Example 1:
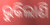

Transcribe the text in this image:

ଭୁକିଲାଣି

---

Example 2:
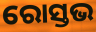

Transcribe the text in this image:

ରୋସ୍ତଭ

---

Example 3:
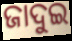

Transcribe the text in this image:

ଜାଦୁଇ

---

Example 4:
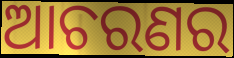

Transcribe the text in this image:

ଆଚରଣର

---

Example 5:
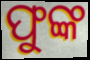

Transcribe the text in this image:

ଫୁଙ୍କ